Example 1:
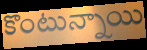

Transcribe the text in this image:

కొంటున్నాయి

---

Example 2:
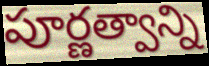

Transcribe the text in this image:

పూర్ణత్వాన్ని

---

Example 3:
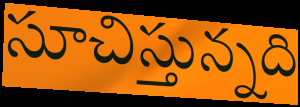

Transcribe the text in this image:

సూచిస్తున్నది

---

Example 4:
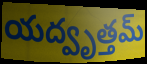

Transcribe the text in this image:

యద్వృత్తమ్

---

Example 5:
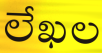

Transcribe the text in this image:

లేఖల